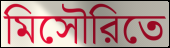
মিসৌরিতে